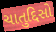
ચાતુદ્દિસો